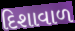
દિશાવાળ